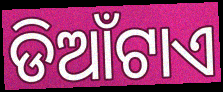
ଡିଆଁଟାଏ